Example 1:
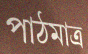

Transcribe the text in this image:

পাঠমাত্র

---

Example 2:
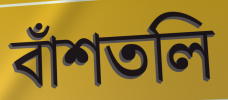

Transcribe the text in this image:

বাঁশতলি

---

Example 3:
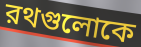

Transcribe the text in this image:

রথগুলোকে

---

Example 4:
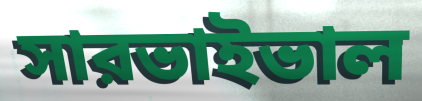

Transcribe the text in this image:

সারভাইভাল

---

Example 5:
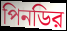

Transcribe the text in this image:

পিনডির